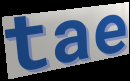
tae